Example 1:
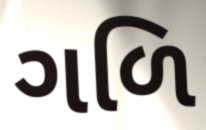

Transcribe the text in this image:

ગળિ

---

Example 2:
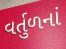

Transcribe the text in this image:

વર્તુળનાં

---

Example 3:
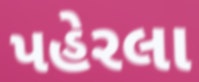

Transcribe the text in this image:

પહેરલા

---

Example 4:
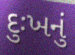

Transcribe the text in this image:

દુઃખનું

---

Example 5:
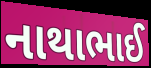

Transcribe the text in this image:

નાથાભાઈ